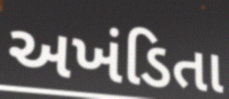
અખંડિતા